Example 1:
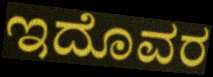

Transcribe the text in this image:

ಇದೊವರ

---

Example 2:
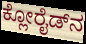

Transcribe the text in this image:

ಕ್ಲೋರೈಡ್‍ನ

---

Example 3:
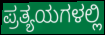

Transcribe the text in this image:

ಪ್ರತ್ಯಯಗಳಲ್ಲಿ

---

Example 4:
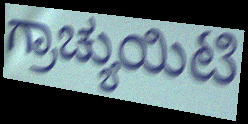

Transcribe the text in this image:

ಗ್ರಾಚ್ಯುಯಿಟಿ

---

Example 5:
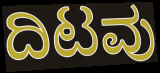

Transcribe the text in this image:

ದಿಟವು